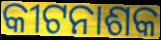
କୀଟନାଶକ